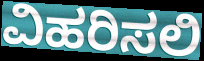
ವಿಹರಿಸಲಿ